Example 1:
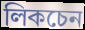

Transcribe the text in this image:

লিকচেন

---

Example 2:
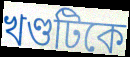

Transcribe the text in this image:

খণ্ডটিকে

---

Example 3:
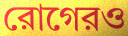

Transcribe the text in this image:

রোগেরও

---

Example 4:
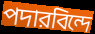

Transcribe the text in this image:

পদারবিন্দে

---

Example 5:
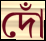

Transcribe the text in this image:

দোঁ